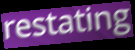
restating